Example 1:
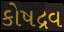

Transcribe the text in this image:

કોષદ્રવ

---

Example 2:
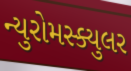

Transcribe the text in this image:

ન્યુરોમસ્ક્યુલર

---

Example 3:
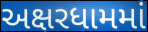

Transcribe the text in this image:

અક્ષરધામમાં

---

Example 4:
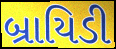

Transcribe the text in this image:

બ્રાયિડી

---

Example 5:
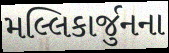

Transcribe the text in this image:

મલ્લિકાર્જુનના